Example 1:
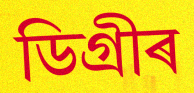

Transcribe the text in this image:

ডিগ্ৰীৰ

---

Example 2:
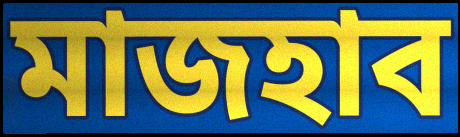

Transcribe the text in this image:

মাজহাব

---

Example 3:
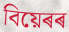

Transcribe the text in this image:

বিয়েৰৰ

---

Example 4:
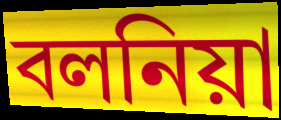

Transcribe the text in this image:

বলনিয়া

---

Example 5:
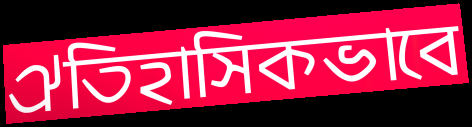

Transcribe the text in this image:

ঐতিহাসিকভাবে